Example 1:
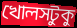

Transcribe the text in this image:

খোলসটুকু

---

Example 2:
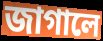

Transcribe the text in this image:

জাগালে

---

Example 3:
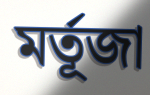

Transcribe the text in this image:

মর্তূজা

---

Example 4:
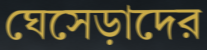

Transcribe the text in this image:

ঘেসেড়াদের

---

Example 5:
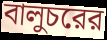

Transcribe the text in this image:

বালুচরের